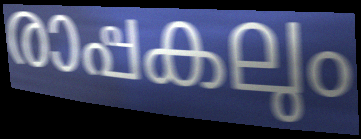
രാപ്പകലും